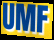
UMF